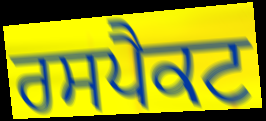
ਰਸਪੈਕਟ